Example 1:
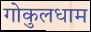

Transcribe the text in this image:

गोकुलधाम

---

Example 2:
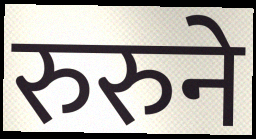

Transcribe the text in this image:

रुरुने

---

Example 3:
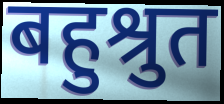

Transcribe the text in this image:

बहुश्रुत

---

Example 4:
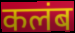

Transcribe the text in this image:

कलंब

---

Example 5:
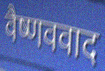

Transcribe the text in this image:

वैष्णववाद